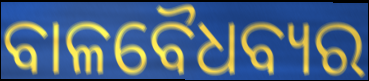
ବାଳବୈଧବ୍ୟର